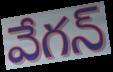
వేగన్